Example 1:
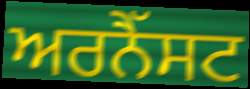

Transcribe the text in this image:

ਅਰਨੈੱਸਟ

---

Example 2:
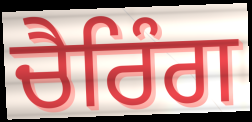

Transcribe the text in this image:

ਚੈਰਿੰਗ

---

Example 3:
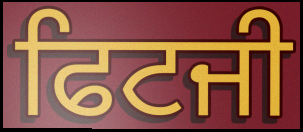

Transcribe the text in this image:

ਫਿਟਜੀ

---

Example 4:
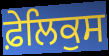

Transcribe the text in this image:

ਫ਼ੇਲਿਕੁਸ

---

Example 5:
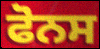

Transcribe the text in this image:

ਫੋਨਸ